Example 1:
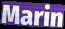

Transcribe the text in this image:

Marin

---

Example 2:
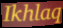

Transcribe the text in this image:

Ikhlaq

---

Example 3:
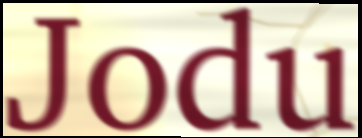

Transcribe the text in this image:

Jodu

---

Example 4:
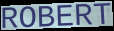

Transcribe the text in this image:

ROBERT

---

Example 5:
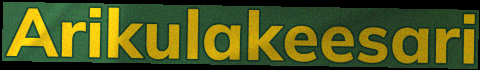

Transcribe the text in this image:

Arikulakeesari